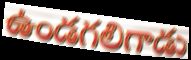
ఉండగలిగాడు